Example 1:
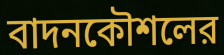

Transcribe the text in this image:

বাদনকৌশলের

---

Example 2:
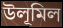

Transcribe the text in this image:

উলূমিল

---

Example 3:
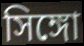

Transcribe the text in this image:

সিঙ্গো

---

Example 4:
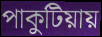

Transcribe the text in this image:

পাকুটিয়ায়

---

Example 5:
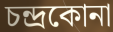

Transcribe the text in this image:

চন্দ্রকোনা